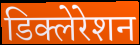
डिक्लेरेशन